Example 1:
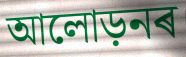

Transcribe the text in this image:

আলোড়নৰ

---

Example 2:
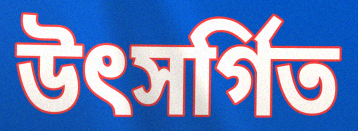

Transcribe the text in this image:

উৎসৰ্গিত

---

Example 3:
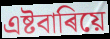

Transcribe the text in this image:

এষ্টবাৰিয়ে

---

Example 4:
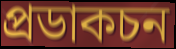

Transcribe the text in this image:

প্ৰডাকচন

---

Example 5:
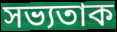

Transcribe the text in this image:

সভ্যতাক